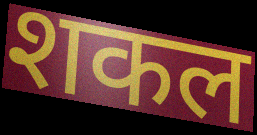
शकल